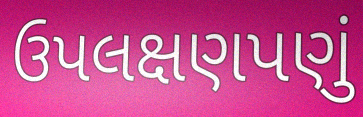
ઉપલક્ષણપણું